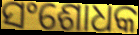
ସଂଶୋଧକ